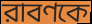
রাবণকে